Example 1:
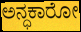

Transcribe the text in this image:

ಅನ್ಧಕಾರೋ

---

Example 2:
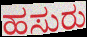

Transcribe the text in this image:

ಹಸುರು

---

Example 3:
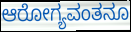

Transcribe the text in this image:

ಆರೋಗ್ಯವಂತನೂ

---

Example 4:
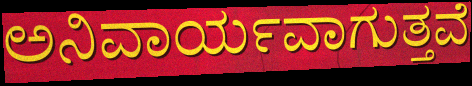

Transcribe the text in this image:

ಅನಿವಾರ್ಯವಾಗುತ್ತವೆ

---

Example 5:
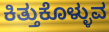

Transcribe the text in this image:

ಕಿತ್ತುಕೊಳ್ಳುವ